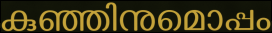
കുഞ്ഞിനുമൊപ്പം